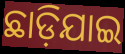
ଛାଡ଼ିଯାଇ